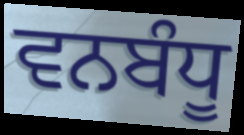
ਵਨਬੰਧੂ